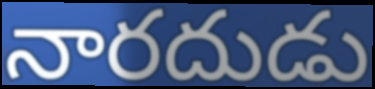
నారదుడు